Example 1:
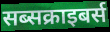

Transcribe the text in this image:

सब्सक्राइबर्स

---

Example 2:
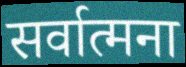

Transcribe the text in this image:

सर्वात्मना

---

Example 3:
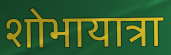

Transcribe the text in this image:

शोभायात्रा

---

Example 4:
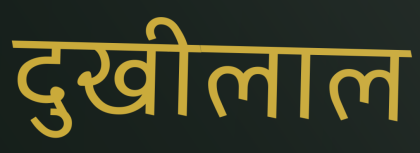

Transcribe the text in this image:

दुखीलाल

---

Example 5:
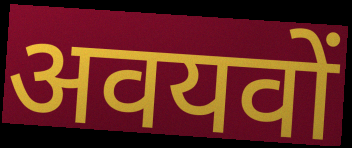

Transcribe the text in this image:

अवयवों